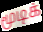
மூடிக்